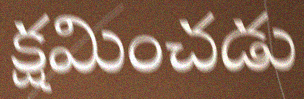
క్షమించడు